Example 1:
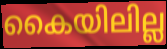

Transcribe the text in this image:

കൈയിലില്ല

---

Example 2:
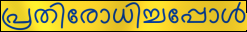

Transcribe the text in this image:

പ്രതിരോധിച്ചപ്പോൾ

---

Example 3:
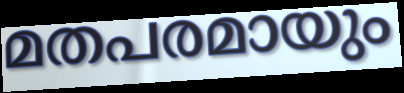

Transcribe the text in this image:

മതപരമായും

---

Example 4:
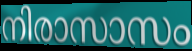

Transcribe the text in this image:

നിരാസാസം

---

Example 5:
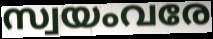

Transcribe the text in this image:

സ്വയംവരേ